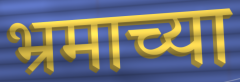
भ्रमाच्या